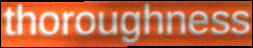
thoroughness